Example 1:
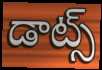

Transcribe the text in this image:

డాట్స్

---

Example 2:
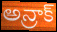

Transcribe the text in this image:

అన్రాక్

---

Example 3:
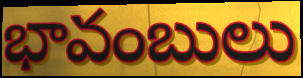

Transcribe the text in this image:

భావంబులు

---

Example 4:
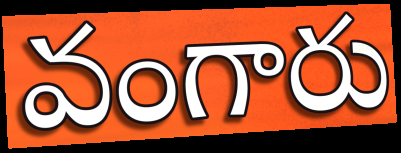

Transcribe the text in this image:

వంగారు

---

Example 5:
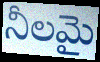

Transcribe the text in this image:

నీలమై